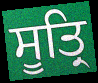
ਸੂਤ੍ਰਿ